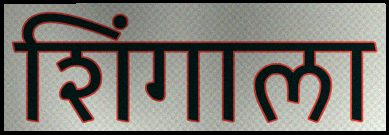
शिंगाला